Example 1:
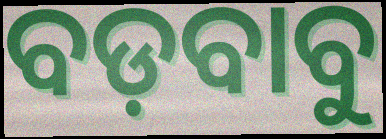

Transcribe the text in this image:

ବଡ଼ବାବୁ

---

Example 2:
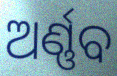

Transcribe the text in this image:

ଅର୍ଣ୍ଣବ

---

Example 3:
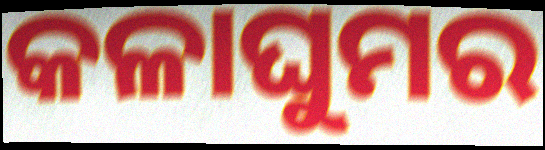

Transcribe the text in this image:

କଳାଘୁମର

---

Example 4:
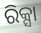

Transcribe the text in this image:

ରିକ୍ସା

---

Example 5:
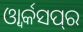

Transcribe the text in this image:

ଓ୍ୱାର୍କସପ୍‌ର